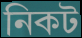
নিকট